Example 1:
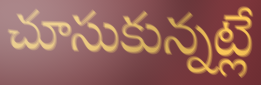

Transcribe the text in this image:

చూసుకున్నట్లే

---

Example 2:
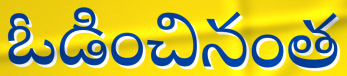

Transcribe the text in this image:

ఓడించినంత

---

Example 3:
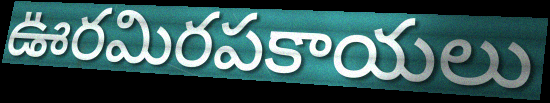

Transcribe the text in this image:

ఊరమిరపకాయలు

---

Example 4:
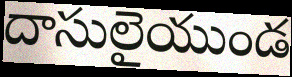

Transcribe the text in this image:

దాసులైయుండ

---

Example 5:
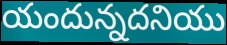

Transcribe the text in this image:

యందున్నదనియు